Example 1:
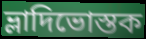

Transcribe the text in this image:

ভ্লাদিভোস্তক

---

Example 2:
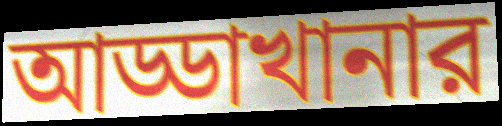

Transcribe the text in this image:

আড্ডাখানার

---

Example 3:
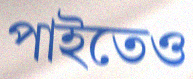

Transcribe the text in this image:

পাইতেও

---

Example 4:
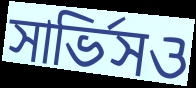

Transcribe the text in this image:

সার্ভিসও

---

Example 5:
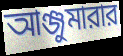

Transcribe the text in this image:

আঞ্জুমারার